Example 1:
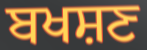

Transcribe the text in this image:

ਬਖਸ਼ਣ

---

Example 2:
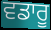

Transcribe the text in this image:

ਵਡਾਰੂ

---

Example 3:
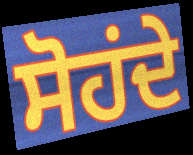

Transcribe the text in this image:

ਸੋਹਂਦੇ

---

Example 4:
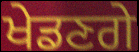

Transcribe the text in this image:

ਖੇਡਣਗੇ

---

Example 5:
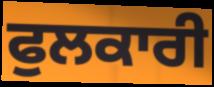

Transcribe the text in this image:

ਫੁਲਕਾਰੀ